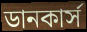
ডানকার্স